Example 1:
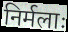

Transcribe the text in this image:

निर्मलाः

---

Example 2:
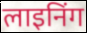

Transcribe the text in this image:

लाइनिंग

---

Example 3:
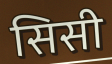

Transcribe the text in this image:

सिसी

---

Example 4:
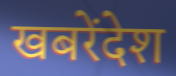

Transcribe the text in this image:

खबरेंदेश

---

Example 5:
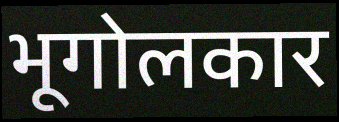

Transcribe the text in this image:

भूगोलकार